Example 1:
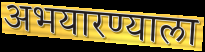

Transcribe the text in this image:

अभयारण्याला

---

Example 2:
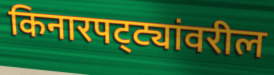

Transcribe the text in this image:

किनारपट्ट्यांवरील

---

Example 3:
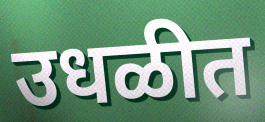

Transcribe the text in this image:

उधळीत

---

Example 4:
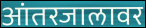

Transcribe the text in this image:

आंतरजालावर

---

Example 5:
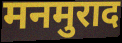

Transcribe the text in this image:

मनमुराद